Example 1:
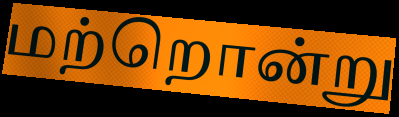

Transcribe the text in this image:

மற்றொன்று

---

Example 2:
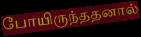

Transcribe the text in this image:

போயிருந்ததனால்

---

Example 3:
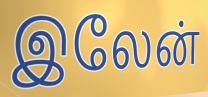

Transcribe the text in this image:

இலேன்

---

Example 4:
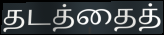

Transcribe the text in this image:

தடத்தைத்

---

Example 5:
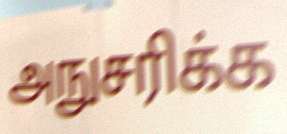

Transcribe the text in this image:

அநுசரிக்க